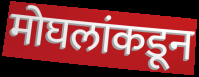
मोघलांकडून